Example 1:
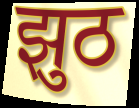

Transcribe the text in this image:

झुठ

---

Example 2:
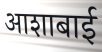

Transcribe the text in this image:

आशाबाई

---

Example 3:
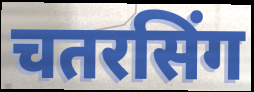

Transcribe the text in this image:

चतरसिंग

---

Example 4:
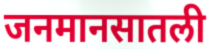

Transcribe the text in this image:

जनमानसातली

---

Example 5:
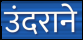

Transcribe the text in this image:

उंदराने